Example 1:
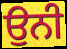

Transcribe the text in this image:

ਉਨੀ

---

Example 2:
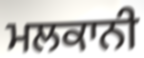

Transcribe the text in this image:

ਮਲਕਾਨੀ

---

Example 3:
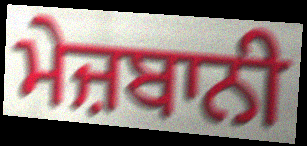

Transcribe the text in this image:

ਮੇਜ਼ਬਾਨੀ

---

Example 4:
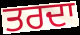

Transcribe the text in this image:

ਤਰਦਾ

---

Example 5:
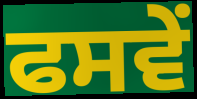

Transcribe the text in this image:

ਫਸਵੇਂ